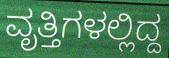
ವೃತ್ತಿಗಳಲ್ಲಿದ್ದ